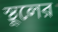
স্থূলের